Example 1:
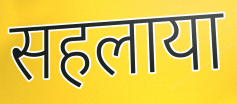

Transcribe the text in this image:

सहलाया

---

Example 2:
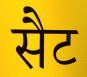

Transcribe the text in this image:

सैट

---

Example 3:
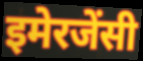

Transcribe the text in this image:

इमेरजेंसी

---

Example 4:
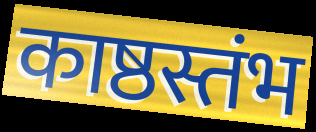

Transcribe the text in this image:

काष्ठस्तंभ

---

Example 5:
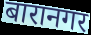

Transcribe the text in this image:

बारानगर